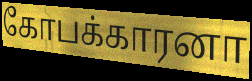
கோபக்காரனா